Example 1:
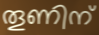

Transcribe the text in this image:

തൂണിന്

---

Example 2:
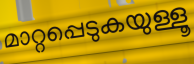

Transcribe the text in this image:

മാറ്റപ്പെടുകയുള്ളൂ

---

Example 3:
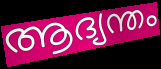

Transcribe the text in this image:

ആദ്യന്തം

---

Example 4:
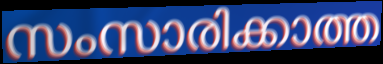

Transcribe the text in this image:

സംസാരിക്കാത്ത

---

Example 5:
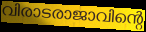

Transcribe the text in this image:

വിരാടരാജാവിന്റെ